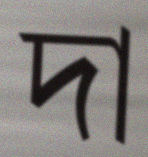
দা